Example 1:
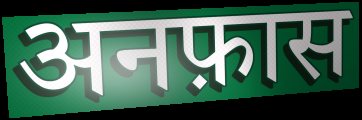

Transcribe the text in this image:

अनफ़ास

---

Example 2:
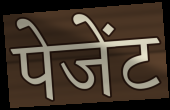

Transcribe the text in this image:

पेजेंट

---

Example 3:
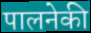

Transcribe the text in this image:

पालनेकी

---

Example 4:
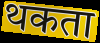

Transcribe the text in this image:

थकता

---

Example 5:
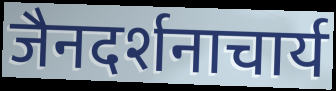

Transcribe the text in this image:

जैनदर्शनाचार्य